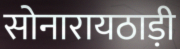
सोनारायठाड़ी